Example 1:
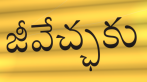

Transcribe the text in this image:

జీవేచ్ఛకు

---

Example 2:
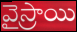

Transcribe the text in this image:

వైస్రాయి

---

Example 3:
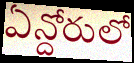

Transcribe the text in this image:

ఏన్దోరులో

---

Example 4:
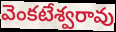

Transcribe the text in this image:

వెంకటేశ్వరావు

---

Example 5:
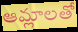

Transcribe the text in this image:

ఆమ్లాలతో